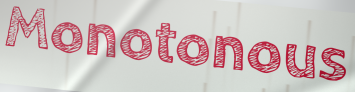
Monotonous